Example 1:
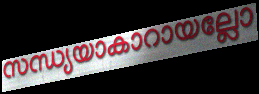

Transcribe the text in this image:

സന്ധ്യയാകാറായല്ലോ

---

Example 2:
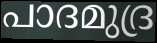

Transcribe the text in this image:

പാദമുദ്ര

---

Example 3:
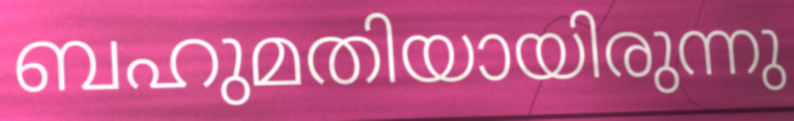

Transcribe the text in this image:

ബഹുമതിയായിരുന്നു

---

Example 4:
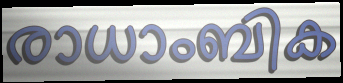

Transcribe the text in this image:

രാധാംബിക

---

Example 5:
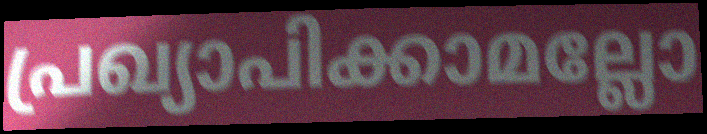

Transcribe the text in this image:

പ്രഖ്യാപിക്കാമല്ലോ